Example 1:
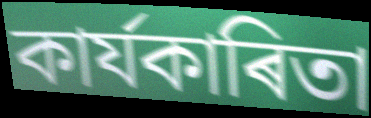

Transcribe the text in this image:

কাৰ্যকাৰিতা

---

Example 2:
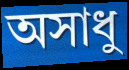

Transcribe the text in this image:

অসাধু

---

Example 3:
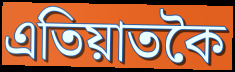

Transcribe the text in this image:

এতিয়াতকৈ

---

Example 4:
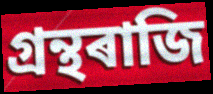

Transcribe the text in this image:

গ্ৰন্থৰাজি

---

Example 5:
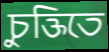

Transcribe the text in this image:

চুক্তিতে